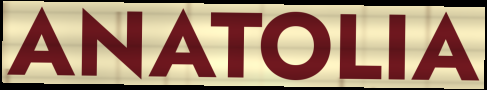
ANATOLIA